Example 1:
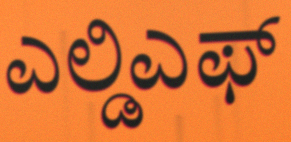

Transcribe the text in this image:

ಎಲ್ಡಿಎಫ್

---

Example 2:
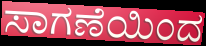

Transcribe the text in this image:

ಸಾಗಣೆಯಿಂದ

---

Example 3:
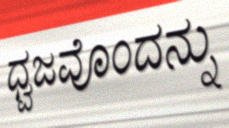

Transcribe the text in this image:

ಧ್ವಜವೊಂದನ್ನು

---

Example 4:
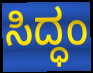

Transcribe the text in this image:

ಸಿದ್ಧಂ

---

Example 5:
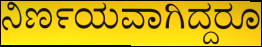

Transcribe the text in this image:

ನಿರ್ಣಯವಾಗಿದ್ದರೂ